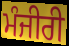
ਮੰਜੀਰੀ